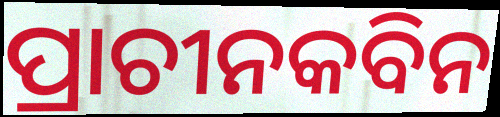
ପ୍ରାଚୀନକବିନ